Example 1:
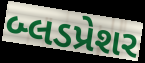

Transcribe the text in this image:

બ્લડપ્રેશર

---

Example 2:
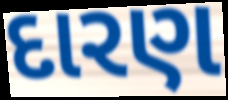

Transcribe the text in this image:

દારણ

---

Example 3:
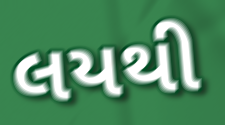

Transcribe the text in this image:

લયથી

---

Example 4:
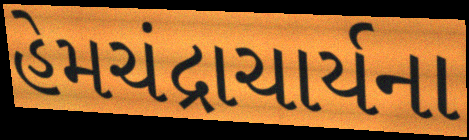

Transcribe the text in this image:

હેમચંદ્રાચાર્યના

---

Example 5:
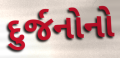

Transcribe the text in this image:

દુર્જનોનો